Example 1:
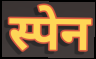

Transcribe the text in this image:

स्पेन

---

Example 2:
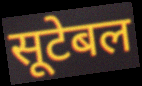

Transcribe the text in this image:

सूटेबल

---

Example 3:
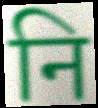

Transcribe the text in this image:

नि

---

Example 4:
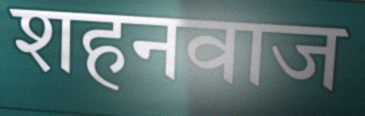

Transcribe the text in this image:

शहनवाज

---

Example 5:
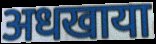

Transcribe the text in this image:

अधखाया